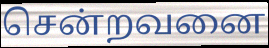
சென்றவனை